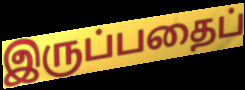
இருப்பதைப்